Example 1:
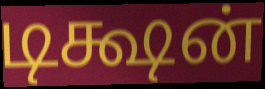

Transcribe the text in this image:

டிக்ஷன்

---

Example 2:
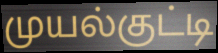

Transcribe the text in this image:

முயல்குட்டி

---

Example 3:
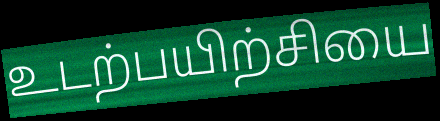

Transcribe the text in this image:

உடற்பயிற்சியை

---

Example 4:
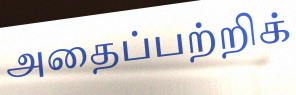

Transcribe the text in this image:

அதைப்பற்றிக்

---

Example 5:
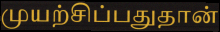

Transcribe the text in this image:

முயற்சிப்பதுதான்